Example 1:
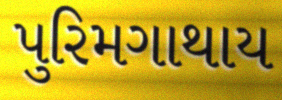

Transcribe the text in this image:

પુરિમગાથાય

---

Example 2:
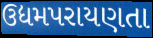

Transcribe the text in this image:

ઉદ્યમપરાયણતા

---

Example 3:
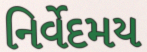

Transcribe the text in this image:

નિર્વેદમય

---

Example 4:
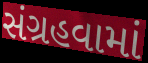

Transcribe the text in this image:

સંગ્રહવામાં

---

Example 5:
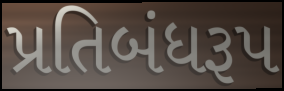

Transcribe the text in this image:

પ્રતિબંધરૂપ